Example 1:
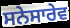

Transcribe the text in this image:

ਸਨੇਸਾਰੇਵ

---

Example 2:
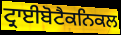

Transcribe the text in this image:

ਟ੍ਰਾਈਬੋਟੈਕਨਿਕਲ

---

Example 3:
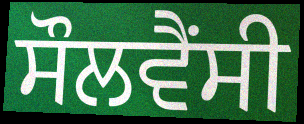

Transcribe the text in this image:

ਸੌਲਵੈਂਸੀ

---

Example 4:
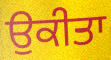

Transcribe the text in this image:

ਉਕੀਤਾ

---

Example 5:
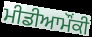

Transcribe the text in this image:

ਮੀਡੀਆਮੌਂਕੀ